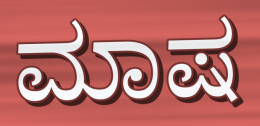
ಮಾಷ